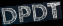
DPDT